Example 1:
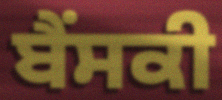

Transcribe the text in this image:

ਬੈਂਸਕੀ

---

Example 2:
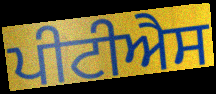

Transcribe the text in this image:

ਪੀਟੀਐਸ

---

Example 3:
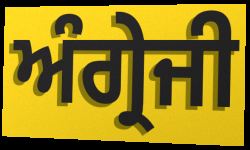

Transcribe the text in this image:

ਅੰਗ੍ਰੇਜੀ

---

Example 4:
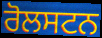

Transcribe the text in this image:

ਰੋਲਸਟਨ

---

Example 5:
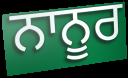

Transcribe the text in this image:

ਨਾਨੂਰ